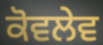
ਕੋਵਲੇਵ